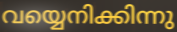
വയ്യെനിക്കിന്നു